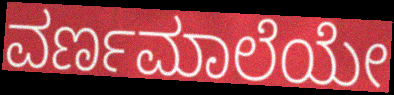
ವರ್ಣಮಾಲೆಯೇ